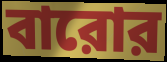
বারোর